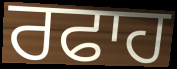
ਰਫਾਹ